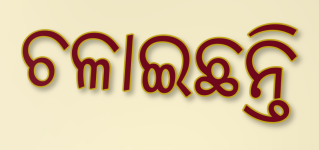
ଚଳାଇଛନ୍ତି